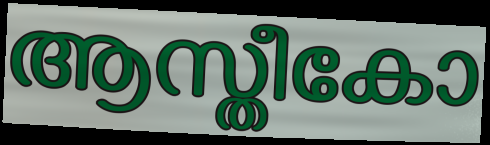
ആസ്തീകോ